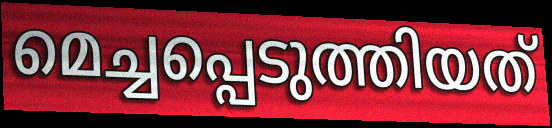
മെച്ചപ്പെടുത്തിയത്